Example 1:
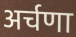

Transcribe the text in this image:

अर्चणा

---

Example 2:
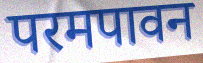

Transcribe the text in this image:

परमपावन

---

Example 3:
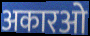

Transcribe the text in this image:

अकारओ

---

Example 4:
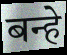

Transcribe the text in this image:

बन्हे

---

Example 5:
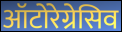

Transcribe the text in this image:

ऑटोरेग्रेसिव